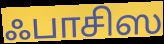
ஃபாசிஸ